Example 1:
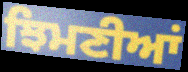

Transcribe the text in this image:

ਝਿਮਣੀਆਂ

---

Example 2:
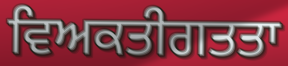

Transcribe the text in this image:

ਵਿਅਕਤੀਗਤਤਾ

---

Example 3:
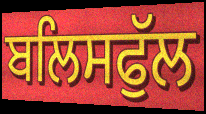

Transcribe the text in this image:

ਬਲਿਸਫੁੱਲ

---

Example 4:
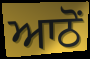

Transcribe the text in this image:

ਆਠੋਂ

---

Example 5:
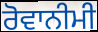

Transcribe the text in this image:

ਰੋਵਾਨੀਮੀ